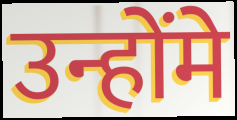
उन्होंमे